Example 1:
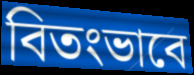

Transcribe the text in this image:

বিতংভাবে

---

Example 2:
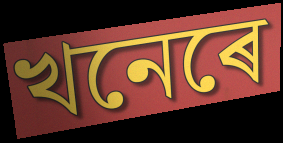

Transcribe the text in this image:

খনেৰে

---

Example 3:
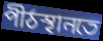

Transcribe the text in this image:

পীঠস্থানতে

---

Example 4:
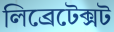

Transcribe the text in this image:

লিব্ৰেটেক্সট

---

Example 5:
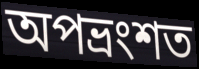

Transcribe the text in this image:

অপভ্ৰংশত